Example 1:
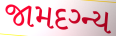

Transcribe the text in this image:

જામદગ્ન્ય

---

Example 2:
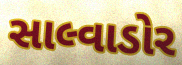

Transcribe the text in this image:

સાલ્વાડોર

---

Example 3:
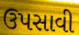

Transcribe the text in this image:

ઉપસાવી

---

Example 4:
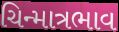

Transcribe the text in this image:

ચિન્માત્રભાવ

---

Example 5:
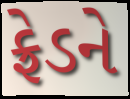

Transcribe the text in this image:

ફ્રેડને